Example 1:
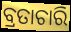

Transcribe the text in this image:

ବ୍ରତାଚାରି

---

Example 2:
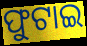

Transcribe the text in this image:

ଫୁଟାଇ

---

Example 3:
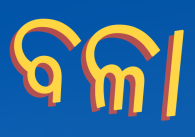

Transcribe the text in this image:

ବଳା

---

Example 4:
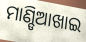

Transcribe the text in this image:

ମାଣ୍ଡିଆଖାଇ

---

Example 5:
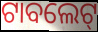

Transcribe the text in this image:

ଟାବଲେଟ୍